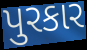
પુરકાર